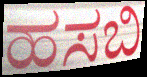
ಹಸಬಿ